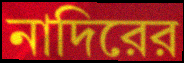
নাদিরের